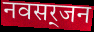
नवसर्जन